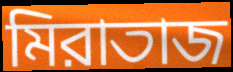
মিরাতাজ